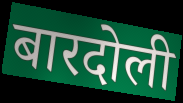
बारदोली